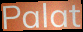
Palat